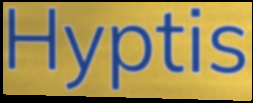
Hyptis